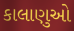
કાલાણુઓ